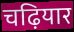
चढ़ियार